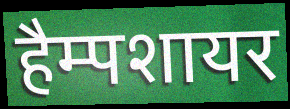
हैम्पशायर